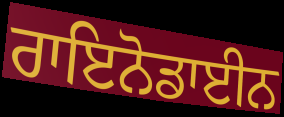
ਰਾਇਨੋਡਾਈਨ